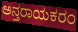
ಅನ್ತರಾಯಕರಂ